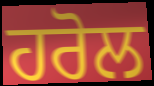
ਹਰੋਲ